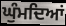
ਘੁੰਮਦਿਆਂ